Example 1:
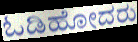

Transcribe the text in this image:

ಓಡಿಹೋದರು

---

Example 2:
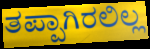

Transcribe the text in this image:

ತಪ್ಪಾಗಿರಲಿಲ್ಲ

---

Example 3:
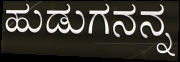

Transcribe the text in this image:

ಹುಡುಗನನ್ನ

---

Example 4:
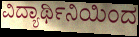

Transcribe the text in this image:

ವಿದ್ಯಾರ್ಥಿನಿಯಿಂದ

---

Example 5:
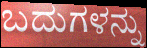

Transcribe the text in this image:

ಬದುಗಳನ್ನು